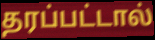
தரப்பட்டால்